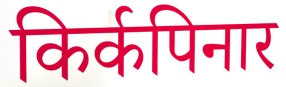
किर्कपिनार